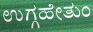
ಉಗ್ಗಹೇತುಂ